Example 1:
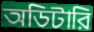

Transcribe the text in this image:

অডিটারি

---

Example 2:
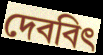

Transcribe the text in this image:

দেববিৎ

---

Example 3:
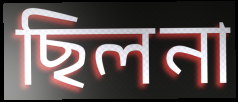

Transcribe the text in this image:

ছিলনা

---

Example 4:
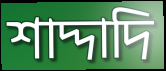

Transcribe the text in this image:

শাদ্দাদি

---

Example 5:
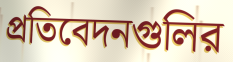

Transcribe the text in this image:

প্রতিবেদনগুলির